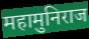
महामुनिराज